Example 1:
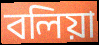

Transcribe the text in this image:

বলিয়া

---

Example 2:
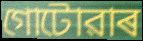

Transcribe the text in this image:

গোটোৱাৰ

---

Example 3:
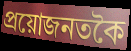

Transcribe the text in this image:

প্ৰয়োজনতকৈ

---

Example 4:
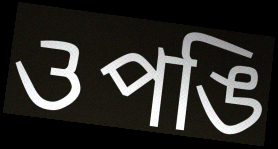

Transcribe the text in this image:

ওপঙি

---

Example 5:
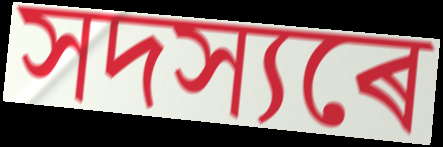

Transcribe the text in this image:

সদস্যৰে